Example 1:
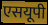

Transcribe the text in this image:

एसयूपी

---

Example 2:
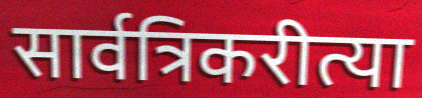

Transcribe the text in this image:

सार्वत्रिकरीत्या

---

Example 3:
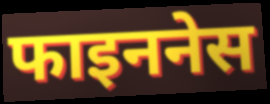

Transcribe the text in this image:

फाइननेस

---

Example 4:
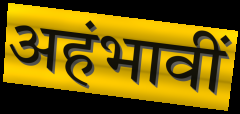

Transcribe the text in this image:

अहंभावीं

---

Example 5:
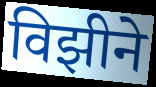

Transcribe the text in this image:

विझीने